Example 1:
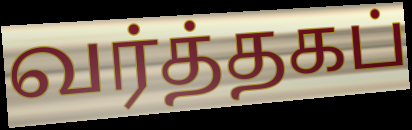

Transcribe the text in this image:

வர்த்தகப்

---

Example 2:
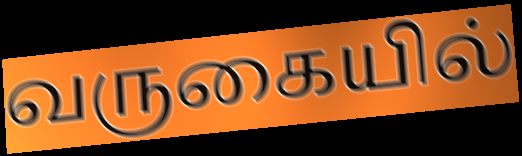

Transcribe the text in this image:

வருகையில்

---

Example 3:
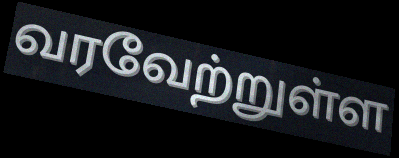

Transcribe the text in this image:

வரவேற்றுள்ள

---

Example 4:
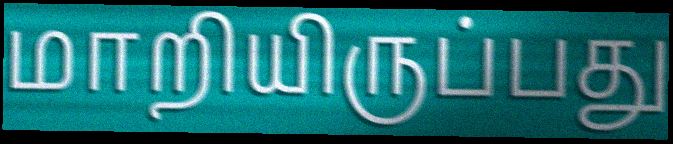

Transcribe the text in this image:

மாறியிருப்பது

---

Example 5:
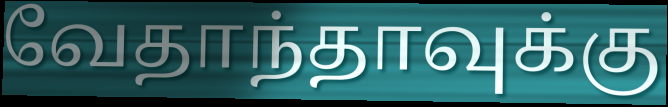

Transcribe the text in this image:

வேதாந்தாவுக்கு